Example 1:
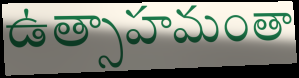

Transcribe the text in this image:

ఉత్సాహమంతా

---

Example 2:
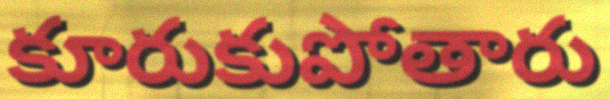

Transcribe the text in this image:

కూరుకుపోతారు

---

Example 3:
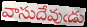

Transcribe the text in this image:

వాసుదేవుఁడు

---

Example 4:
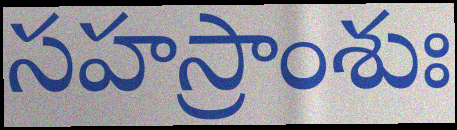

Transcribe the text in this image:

సహస్రాంశుః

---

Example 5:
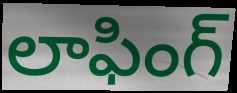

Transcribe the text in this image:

లాఫింగ్